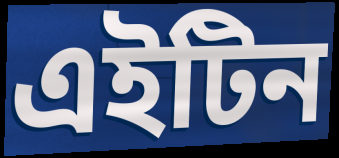
এইটিন